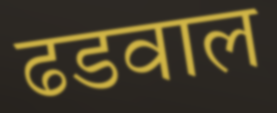
ढडवाल